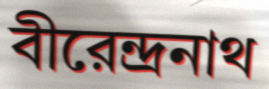
বীরেন্দ্রনাথ